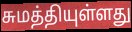
சுமத்தியுள்ளது